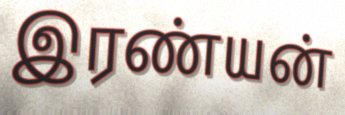
இரண்யன்